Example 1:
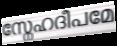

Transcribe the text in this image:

സ്നേഹദീപമേ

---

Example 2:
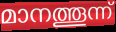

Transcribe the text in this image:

മാനത്തൂന്ന്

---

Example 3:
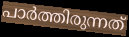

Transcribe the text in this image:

പാർത്തിരുന്നത്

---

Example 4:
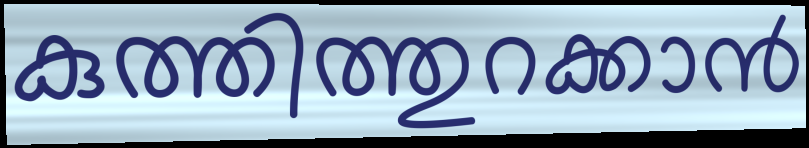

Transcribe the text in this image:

കുത്തിത്തുറക്കാൻ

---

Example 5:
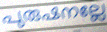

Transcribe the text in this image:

പുരുഷനല്ലേ